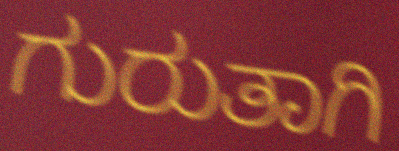
ಗುರುತಾಗಿ